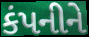
કંપનીને